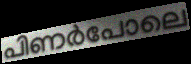
പിണർപോലെ